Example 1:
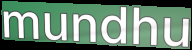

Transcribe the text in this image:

mundhu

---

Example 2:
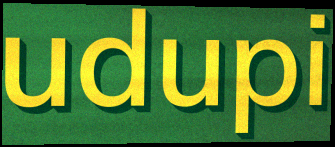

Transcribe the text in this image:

udupi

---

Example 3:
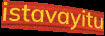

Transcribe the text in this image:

istavayitu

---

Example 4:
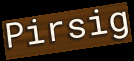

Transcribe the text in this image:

Pirsig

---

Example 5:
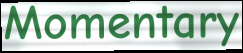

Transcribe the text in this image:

Momentary